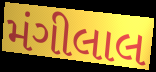
મંગીલાલ